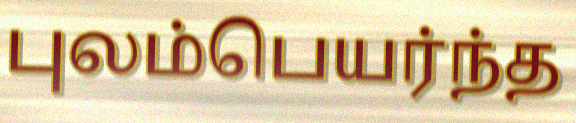
புலம்பெயர்ந்த